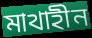
মাথাহীন